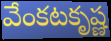
వేంకటకృష్ణ